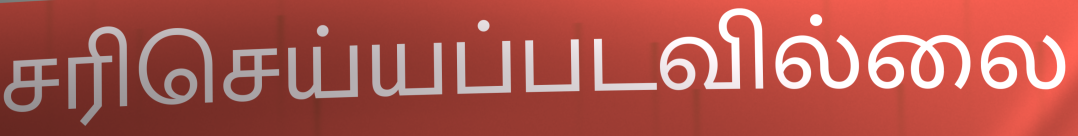
சரிசெய்யப்படவில்லை